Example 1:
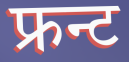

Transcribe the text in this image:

फ्रन्ट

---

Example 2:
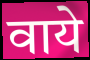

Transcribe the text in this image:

वाये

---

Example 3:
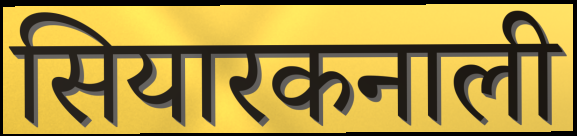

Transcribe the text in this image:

सियारकनाली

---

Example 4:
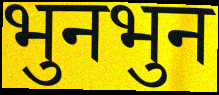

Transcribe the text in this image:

भुनभुन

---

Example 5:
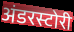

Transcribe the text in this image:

अंडरस्टोरी